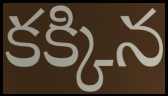
కక్కిన